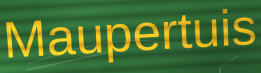
Maupertuis